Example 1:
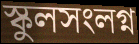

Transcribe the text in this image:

স্কুলসংলগ্ন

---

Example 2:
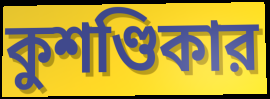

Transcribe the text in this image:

কুশণ্ডিকার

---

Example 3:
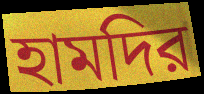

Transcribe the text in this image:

হামদির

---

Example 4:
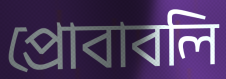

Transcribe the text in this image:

প্রোবাবলি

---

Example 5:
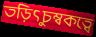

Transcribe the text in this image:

তড়িৎচুম্বকত্বে